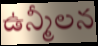
ఉన్మీలన